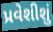
પ્રવેશીશું